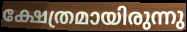
ക്ഷേത്രമായിരുന്നു